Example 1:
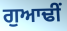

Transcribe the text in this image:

ਗੁਆਢੀਂ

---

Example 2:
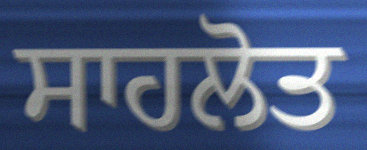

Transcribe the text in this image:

ਸਾਹਲੋਤ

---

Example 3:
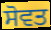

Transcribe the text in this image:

ਸੋਵਤ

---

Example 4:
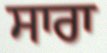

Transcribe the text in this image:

ਸਾਰਾ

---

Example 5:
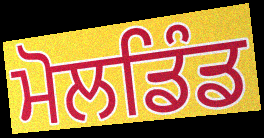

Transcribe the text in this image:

ਮੋਲਡਿੰਡ